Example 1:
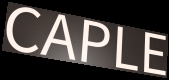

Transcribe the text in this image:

CAPLE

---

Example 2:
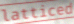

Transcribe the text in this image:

latticed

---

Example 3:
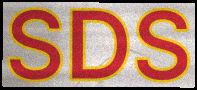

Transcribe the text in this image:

SDS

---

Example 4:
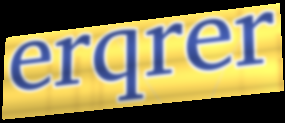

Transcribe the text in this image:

erqrer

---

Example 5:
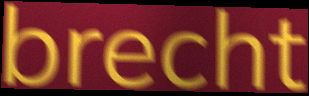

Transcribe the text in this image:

brecht